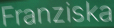
Franziska